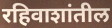
रहिवाशांतील